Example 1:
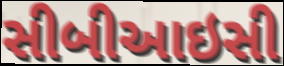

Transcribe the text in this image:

સીબીઆઇસી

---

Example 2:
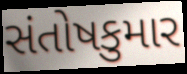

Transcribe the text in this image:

સંતોષકુમાર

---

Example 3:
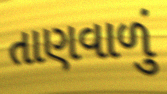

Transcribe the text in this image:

તાણવાળું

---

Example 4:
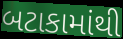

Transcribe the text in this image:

બટાકામાંથી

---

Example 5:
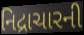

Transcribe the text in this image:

નિદ્રાચારની